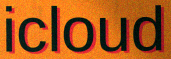
icloud